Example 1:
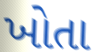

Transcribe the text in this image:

ખોતા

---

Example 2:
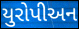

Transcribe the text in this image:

યુરોપીઅન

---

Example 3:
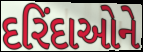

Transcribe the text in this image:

દરિંદાઓને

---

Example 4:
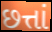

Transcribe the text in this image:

છત્તાં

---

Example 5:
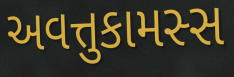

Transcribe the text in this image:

અવત્તુકામસ્સ